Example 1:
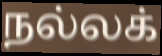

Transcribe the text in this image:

நல்லக்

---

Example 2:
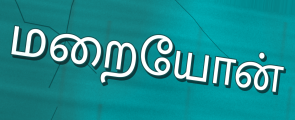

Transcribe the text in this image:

மறையோன்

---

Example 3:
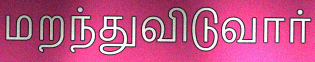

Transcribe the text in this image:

மறந்துவிடுவார்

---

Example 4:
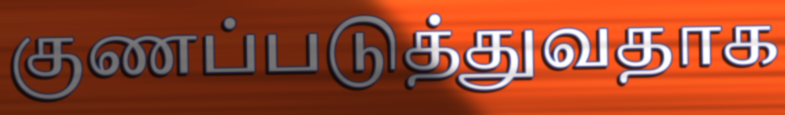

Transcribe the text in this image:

குணப்படுத்துவதாக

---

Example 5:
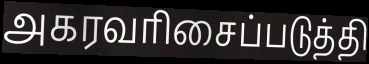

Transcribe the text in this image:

அகரவரிசைப்படுத்தி